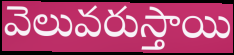
వెలువరుస్తాయి